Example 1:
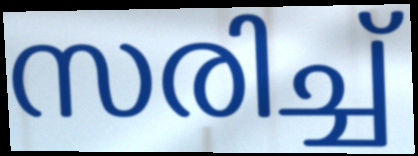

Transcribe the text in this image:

സരിച്ച്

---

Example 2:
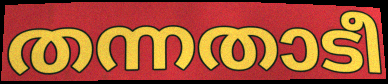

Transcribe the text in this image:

തന്നതാടീ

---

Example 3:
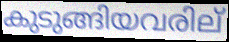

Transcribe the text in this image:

കുടുങ്ങിയവരില്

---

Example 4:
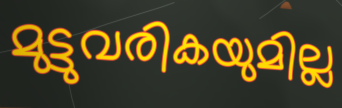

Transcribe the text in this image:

മുട്ടുവരികയുമില്ല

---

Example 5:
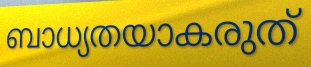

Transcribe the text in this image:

ബാധ്യതയാകരുത്